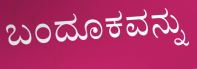
ಬಂದೂಕವನ್ನು